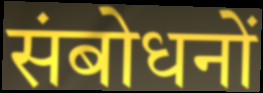
संबोधनों